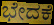
ಭೇದಕೆ